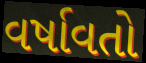
વર્ષાવતો